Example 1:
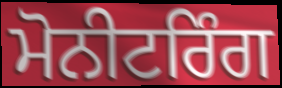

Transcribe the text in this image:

ਮੋਨੀਟਰਿੰਗ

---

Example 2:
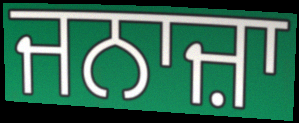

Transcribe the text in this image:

ਜਨਾਜ਼ਾ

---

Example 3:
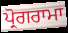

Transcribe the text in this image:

ਪ੍ਰੋਗਰਾਮਾ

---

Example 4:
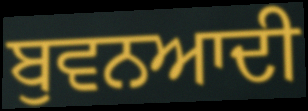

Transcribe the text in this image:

ਬੁਵਨਆਦੀ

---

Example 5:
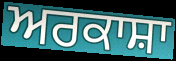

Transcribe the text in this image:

ਅਰਕਾਸ਼ਾ